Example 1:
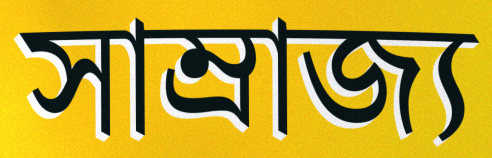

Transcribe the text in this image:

সাম্ৰাজ্য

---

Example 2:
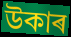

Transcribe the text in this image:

উকাৰ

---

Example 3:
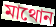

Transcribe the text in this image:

মাথোন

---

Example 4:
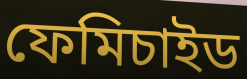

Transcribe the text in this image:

ফেমিচাইড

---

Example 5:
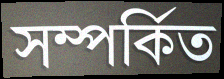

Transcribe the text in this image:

সম্পৰ্কিত